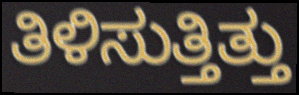
ತಿಳಿಸುತ್ತಿತ್ತು